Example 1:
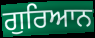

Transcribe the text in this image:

ਗੁਰਿਆਨ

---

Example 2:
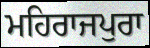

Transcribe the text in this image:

ਮਹਿਰਾਜਪੁਰਾ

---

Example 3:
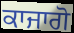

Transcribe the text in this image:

ਕਾਜਾਗੋ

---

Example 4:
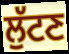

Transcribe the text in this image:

ਲੁੱਟਣ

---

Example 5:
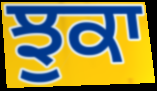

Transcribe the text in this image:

ਝੁਕਾ